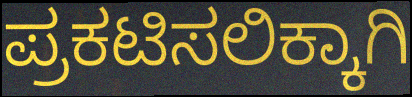
ಪ್ರಕಟಿಸಲಿಕ್ಕಾಗಿ